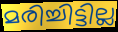
മരിച്ചിട്ടില്ല